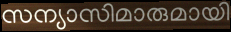
സന്യാസിമാരുമായി